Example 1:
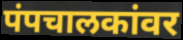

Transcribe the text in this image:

पंपचालकांवर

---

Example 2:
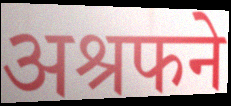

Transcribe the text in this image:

अश्रफने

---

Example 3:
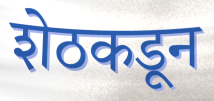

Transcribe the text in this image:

शेठकडून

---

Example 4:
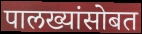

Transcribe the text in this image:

पालख्यांसोबत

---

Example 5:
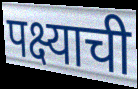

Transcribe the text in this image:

पक्ष्याची